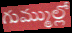
గుమ్ముల్లో